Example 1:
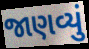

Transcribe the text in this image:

જાણવ્યું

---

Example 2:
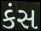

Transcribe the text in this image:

કંસ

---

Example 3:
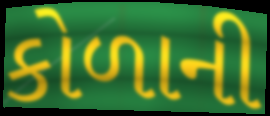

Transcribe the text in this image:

કોળાની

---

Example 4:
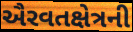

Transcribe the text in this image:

ઐરવતક્ષેત્રની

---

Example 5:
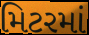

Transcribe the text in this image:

મિટરમાં